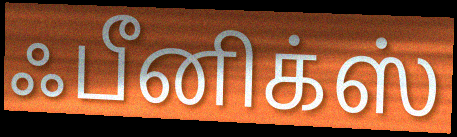
ஃபீனிக்ஸ்